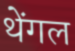
थेंगल